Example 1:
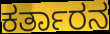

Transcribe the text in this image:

ಕರ್ತಾರನ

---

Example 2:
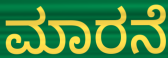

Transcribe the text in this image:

ಮಾರನೆ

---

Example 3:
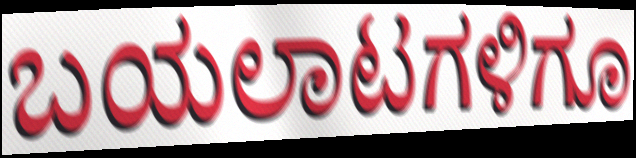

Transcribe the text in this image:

ಬಯಲಾಟಗಳಿಗೂ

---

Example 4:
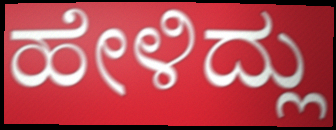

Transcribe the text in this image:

ಹೇಳಿದ್ಲು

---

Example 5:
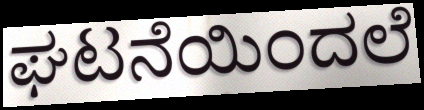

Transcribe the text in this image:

ಘಟನೆಯಿಂದಲೆ